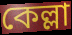
কেল্লা